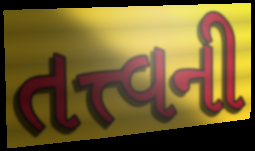
તત્ત્વની